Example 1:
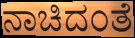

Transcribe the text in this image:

ನಾಚಿದಂತೆ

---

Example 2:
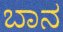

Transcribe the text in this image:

ಬಾನ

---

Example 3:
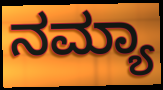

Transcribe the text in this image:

ನಮ್ಯಾ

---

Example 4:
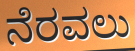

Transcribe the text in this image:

ನೆರವಲು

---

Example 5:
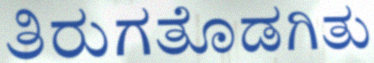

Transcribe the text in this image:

ತಿರುಗತೊಡಗಿತು